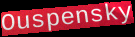
Ouspensky